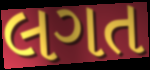
લગત